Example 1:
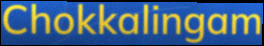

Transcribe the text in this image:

Chokkalingam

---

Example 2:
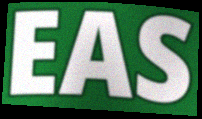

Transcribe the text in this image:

EAS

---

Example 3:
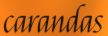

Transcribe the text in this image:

carandas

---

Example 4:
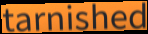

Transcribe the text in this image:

tarnished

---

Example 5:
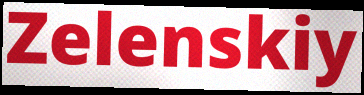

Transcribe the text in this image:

Zelenskiy